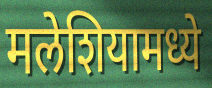
मलेशियामध्ये